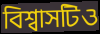
বিশ্বাসটিও